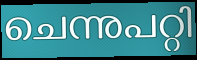
ചെന്നുപറ്റി